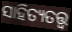
ସାହିତ୍ୟତତ୍ତ୍ୱ